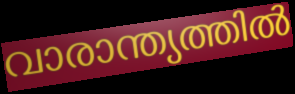
വാരാന്ത്യത്തിൽ